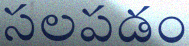
సలపడం